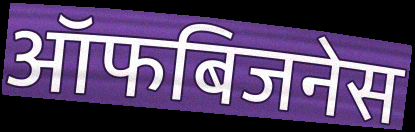
ऑफबिजनेस